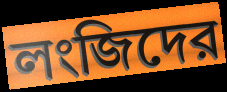
লংজিদের